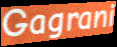
Gagrani